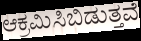
ಆಕ್ರಮಿಸಿಬಿಡುತ್ತವೆ